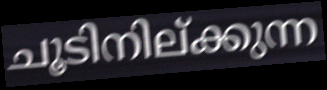
ചൂടിനില്ക്കുന്ന